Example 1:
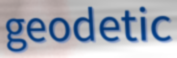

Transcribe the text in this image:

geodetic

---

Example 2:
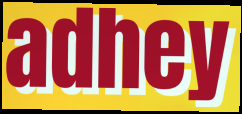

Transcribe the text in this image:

adhey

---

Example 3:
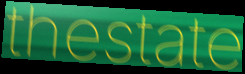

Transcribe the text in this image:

thestate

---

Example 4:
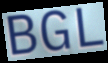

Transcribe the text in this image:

BGL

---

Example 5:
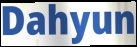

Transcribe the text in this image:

Dahyun